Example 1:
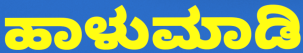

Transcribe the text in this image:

ಹಾಳುಮಾಡಿ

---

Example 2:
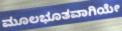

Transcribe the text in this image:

ಮೂಲಭೂತವಾಗಿಯೇ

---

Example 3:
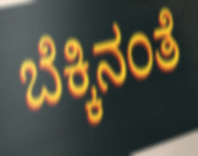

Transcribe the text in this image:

ಬೆಕ್ಕಿನಂತೆ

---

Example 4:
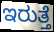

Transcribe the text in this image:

ಇರುತ್ತೆ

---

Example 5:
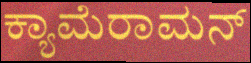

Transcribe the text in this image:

ಕ್ಯಾಮೆರಾಮನ್